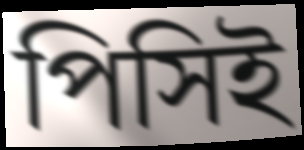
পিসিই